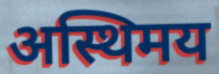
अस्थिमय